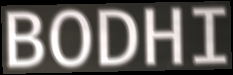
BODHI